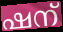
ഷന്